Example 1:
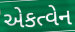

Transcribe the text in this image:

એકત્વેન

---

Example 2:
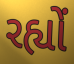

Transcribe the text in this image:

રહ્યોં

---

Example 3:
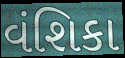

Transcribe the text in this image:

વંશિકા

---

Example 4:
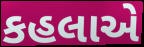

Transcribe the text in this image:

કહલાએ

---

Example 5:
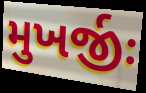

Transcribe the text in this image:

મુખર્જીઃ